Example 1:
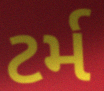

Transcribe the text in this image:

ટર્મ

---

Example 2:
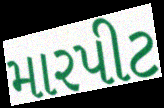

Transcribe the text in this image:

મારપીટ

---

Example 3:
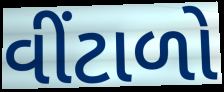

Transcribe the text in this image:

વીંટાળો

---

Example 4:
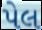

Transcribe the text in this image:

પેલ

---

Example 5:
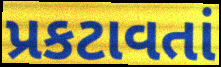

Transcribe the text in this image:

પ્રકટાવતાં